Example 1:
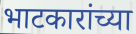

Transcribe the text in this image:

भाटकारांच्या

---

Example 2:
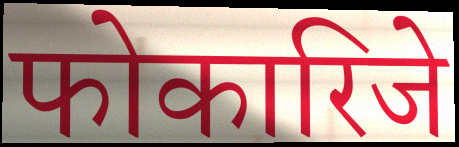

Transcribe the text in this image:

फोकारिजे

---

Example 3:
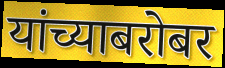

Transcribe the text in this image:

यांच्याबरोबर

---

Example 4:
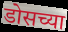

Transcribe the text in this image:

डोसच्या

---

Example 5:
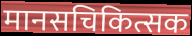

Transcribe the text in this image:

मानसचिकित्सक